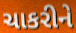
ચાકરીને